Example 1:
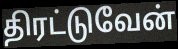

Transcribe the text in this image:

திரட்டுவேன்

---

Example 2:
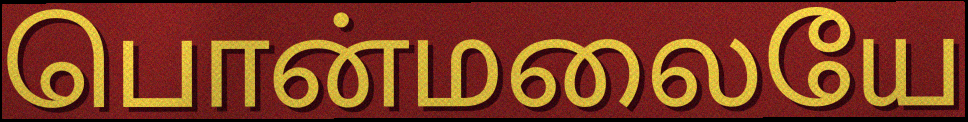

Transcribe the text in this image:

பொன்மலையே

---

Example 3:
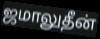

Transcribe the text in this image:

ஜமாலுதீன்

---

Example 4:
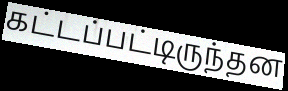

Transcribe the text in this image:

கட்டப்பட்டிருந்தன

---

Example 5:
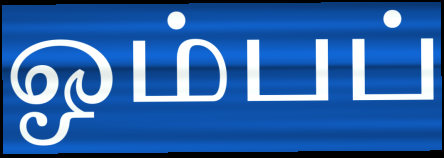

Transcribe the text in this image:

ஓம்பப்